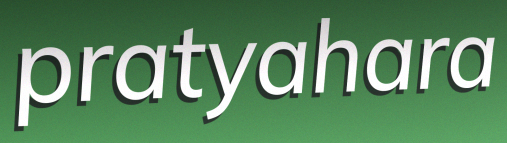
pratyahara